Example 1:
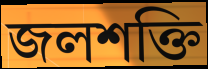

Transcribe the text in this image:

জলশক্তি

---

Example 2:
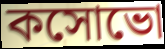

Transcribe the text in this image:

কসোভো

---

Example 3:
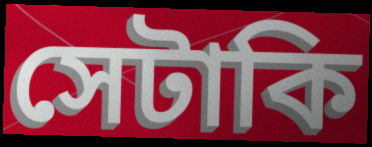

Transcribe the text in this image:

সেটাকি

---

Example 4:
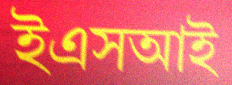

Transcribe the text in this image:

ইএসআই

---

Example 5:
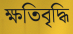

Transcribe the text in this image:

ক্ষতিবৃদ্ধি